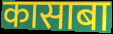
कासाबा